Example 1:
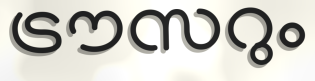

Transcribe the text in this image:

ട്രൗസറും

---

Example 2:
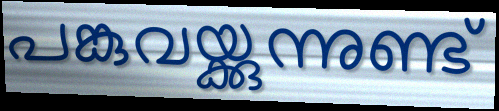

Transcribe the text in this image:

പങ്കുവയ്ക്കുന്നുണ്ട്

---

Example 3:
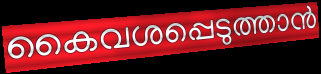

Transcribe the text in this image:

കൈവശപ്പെടുത്താൻ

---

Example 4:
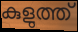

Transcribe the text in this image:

കുളുത്ത്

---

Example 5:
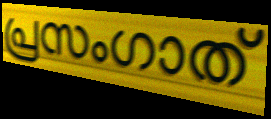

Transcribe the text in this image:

പ്രസംഗാത്